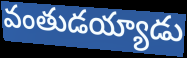
వంతుడయ్యాడు